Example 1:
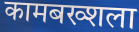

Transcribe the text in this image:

कामबख्शला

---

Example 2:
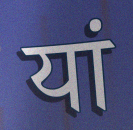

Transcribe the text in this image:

यां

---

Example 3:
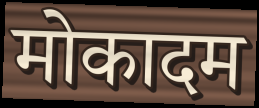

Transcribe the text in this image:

मोकादम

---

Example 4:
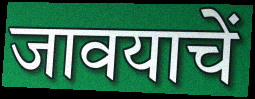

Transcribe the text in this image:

जावयाचें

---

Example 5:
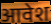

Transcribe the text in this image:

आवेश